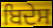
ਬਿਦੇਸ